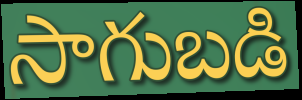
సాగుబడి